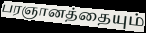
பரஞானத்தையும்